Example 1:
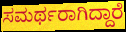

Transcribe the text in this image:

ಸಮರ್ಥರಾಗಿದ್ದಾರೆ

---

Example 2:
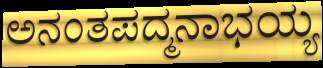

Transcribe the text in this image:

ಅನಂತಪದ್ಮನಾಭಯ್ಯ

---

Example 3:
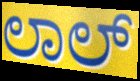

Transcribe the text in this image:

ಲಾಲ್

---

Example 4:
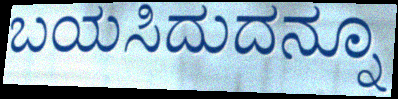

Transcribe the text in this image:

ಬಯಸಿದುದನ್ನೂ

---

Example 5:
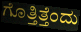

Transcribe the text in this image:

ಗೊತ್ತಿತ್ತೆಂದು